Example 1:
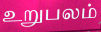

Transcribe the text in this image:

உறுபலம்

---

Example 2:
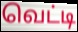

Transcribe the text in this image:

வெட்டி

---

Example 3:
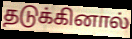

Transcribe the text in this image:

தடுக்கினால்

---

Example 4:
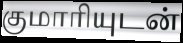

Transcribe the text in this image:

குமாரியுடன்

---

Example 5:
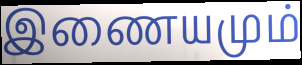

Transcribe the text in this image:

இணையமும்